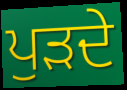
ਪੁੜਦੇ